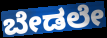
ಬೇಡಲೇ